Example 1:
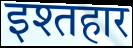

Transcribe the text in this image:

इश्तहार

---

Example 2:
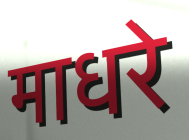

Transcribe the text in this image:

माधरे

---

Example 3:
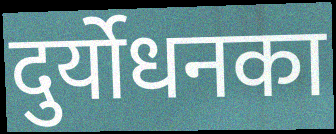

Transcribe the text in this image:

दुर्योधनका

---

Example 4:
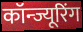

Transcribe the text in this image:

कॉन्ज्यूरिंग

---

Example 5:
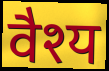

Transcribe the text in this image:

वैश्य